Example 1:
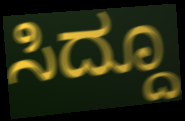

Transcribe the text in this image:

ಸಿದ್ದೂ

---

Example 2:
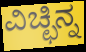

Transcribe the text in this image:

ವಿಚ್ಛಿನ್ನ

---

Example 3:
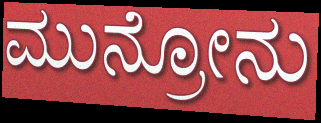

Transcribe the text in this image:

ಮುನ್ರೋನು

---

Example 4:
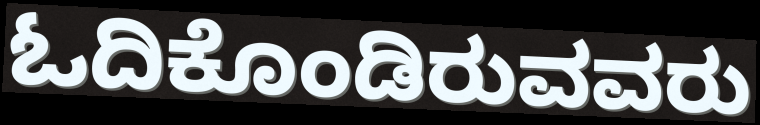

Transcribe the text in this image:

ಓದಿಕೊಂಡಿರುವವರು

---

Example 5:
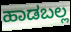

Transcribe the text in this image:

ಹಾಡಬಲ್ಲ